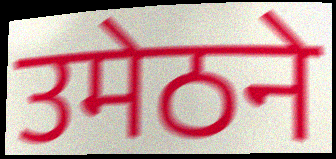
उमेठने